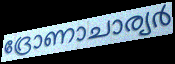
ദ്രോണാചാര്യർ